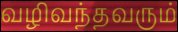
வழிவந்தவரும்